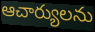
ఆచార్యులను